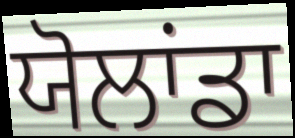
ਯੋਲਾਂਡਾ